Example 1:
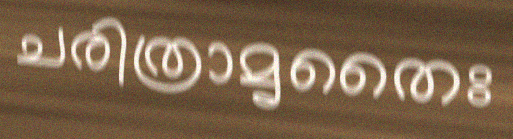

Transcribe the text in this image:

ചരിത്രാമൃതൈഃ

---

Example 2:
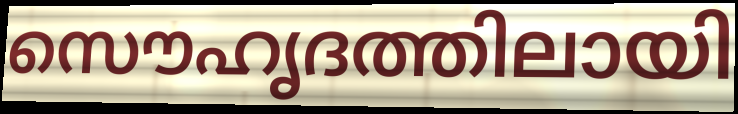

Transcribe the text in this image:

സൌഹൃദത്തിലായി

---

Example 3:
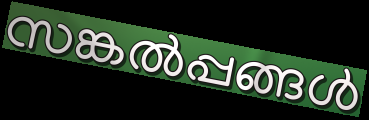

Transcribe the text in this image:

സങ്കൽപ്പങ്ങൾ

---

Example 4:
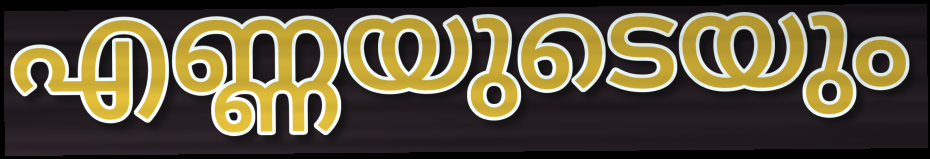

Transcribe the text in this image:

എണ്ണയുടെയും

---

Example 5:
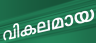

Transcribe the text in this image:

വികലമായ